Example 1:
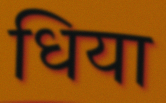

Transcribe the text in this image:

धिया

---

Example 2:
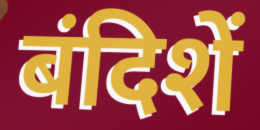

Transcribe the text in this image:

बंदिशें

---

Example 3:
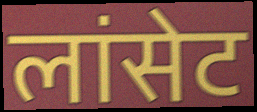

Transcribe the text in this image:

लांसेट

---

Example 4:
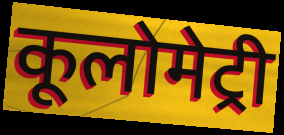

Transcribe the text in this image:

कूलोमेट्री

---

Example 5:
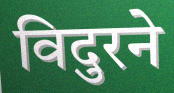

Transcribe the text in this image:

विदुरने